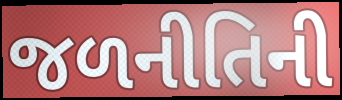
જળનીતિની